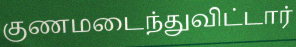
குணமடைந்துவிட்டார்